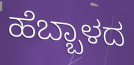
ಹೆಬ್ಬಾಳದ